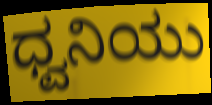
ಧ್ವನಿಯು